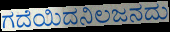
ಗದೆಯಿದನಿಲಜನದು